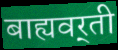
बाह्यवर्ती